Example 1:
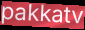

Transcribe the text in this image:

pakkatv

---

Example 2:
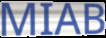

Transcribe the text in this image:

MIAB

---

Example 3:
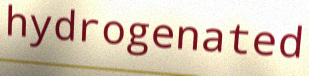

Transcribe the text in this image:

hydrogenated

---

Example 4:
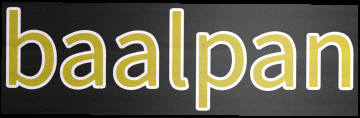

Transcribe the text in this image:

baalpan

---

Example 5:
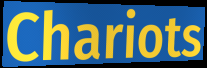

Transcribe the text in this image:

Chariots